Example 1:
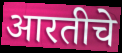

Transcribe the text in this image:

आरतीचे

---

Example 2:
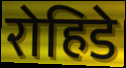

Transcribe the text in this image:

रोहिडे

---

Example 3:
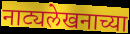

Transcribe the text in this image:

नाट्यलेखनाच्या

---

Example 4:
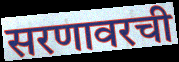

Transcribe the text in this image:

सरणावरची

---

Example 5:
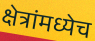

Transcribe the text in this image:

क्षेत्रांमध्येच